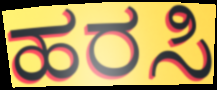
ಹರಸಿ